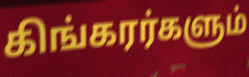
கிங்கரர்களும்